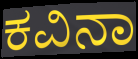
ಕವಿನಾ